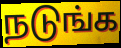
நடுங்க